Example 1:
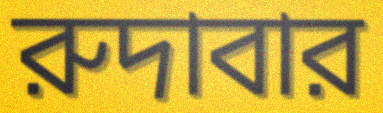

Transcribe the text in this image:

রুদাবার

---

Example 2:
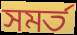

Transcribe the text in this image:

সমর্ত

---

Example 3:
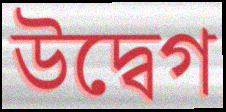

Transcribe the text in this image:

উদ্বেগ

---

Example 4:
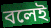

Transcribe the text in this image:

বলেই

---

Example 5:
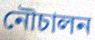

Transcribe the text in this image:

নৌচালন